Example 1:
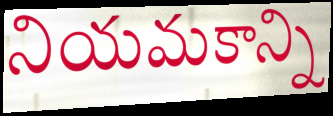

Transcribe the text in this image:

నియమకాన్ని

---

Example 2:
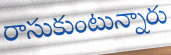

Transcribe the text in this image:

రాసుకుంటున్నారు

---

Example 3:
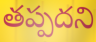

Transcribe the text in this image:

తప్పదని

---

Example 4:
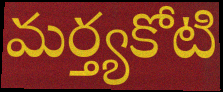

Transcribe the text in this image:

మర్త్యకోటి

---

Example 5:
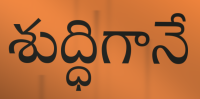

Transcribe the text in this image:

శుద్ధిగానే